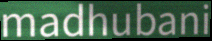
madhubani